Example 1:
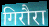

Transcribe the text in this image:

गिरौरा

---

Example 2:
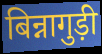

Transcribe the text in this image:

बिन्नागुड़ी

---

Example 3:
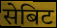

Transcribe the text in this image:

सेबिट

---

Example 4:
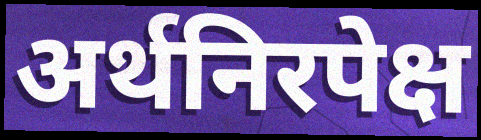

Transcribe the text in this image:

अर्थनिरपेक्ष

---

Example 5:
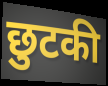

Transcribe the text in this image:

छुटकी